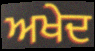
ਅਖੇਦ